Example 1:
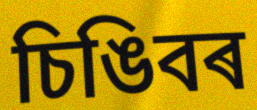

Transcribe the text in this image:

চিঙিবৰ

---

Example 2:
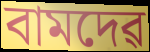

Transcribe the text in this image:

বামদেৱ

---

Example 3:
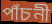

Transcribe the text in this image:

পাঁচনী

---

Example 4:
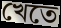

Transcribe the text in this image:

খেতে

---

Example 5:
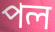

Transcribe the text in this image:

পল